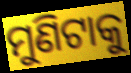
ମୁଣିଟାକୁ